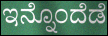
ಇನ್ನೊಂದೆಡೆ